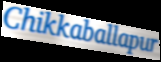
Chikkaballapur